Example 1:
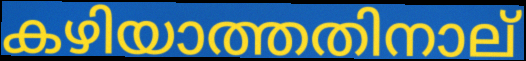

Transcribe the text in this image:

കഴിയാത്തതിനാല്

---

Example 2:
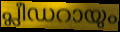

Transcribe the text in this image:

പ്ലീഡറായും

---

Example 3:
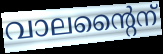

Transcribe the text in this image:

വാലന്റൈന്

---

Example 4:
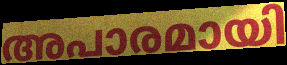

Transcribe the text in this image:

അപാരമായി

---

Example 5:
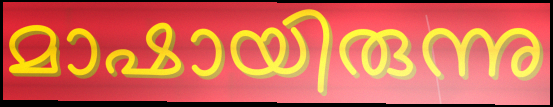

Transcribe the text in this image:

മാഷായിരുന്നു